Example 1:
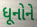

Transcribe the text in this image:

ધૂનોને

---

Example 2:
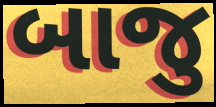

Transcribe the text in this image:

બાજુ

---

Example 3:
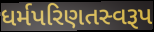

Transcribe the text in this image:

ધર્મપરિણતસ્વરૂપ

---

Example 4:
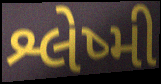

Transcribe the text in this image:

શ્લેષ્મી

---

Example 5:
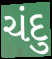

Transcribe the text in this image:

ચંદુ